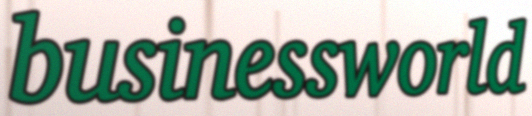
businessworld